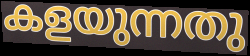
കളയുന്നതു